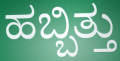
ಹಬ್ಬಿತ್ತು